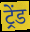
ट्रेंड